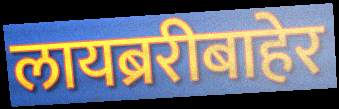
लायब्ररीबाहेर